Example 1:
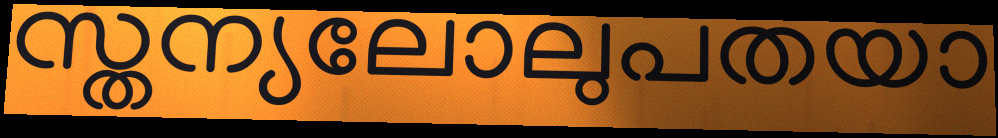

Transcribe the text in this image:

സ്തന്യലോലുപതയാ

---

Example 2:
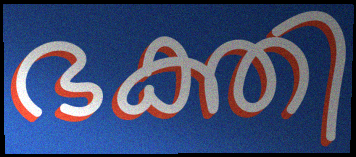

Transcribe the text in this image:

ഭക്തി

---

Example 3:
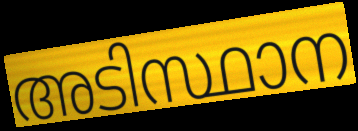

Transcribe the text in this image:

അടിസ്ഥാന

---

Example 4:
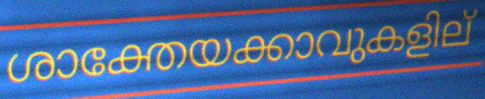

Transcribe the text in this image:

ശാക്തേയക്കാവുകളില്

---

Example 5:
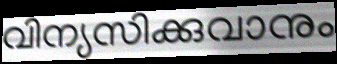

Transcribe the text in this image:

വിന്യസിക്കുവാനും